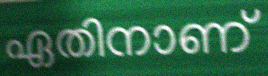
ഏതിനാണ്